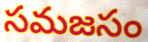
సమజసం